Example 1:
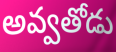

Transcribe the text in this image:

అవ్వతోడు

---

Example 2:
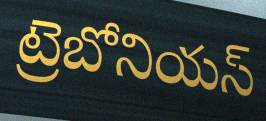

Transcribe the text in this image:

ట్రెబోనియస్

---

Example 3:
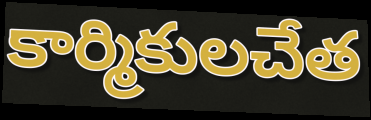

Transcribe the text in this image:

కార్మికులచేత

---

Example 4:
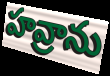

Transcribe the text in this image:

హవ్రాను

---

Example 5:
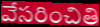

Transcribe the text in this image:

వేసరించితి